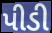
પીડી